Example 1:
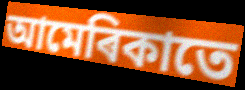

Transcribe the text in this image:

আমেৰিকাতে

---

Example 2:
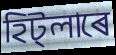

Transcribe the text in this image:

হিট্‌লাৰে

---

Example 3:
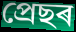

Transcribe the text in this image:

প্ৰেছৰ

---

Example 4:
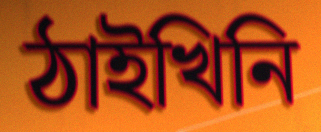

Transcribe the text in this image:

ঠাইখিনি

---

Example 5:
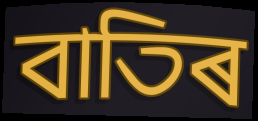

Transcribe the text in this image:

বাতিৰ